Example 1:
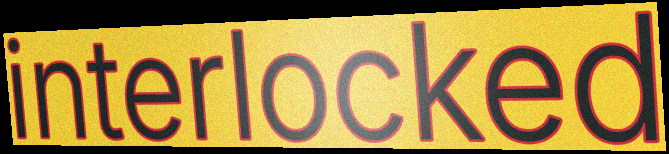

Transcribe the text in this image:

interlocked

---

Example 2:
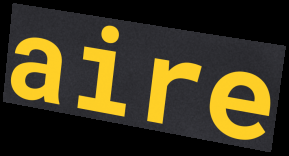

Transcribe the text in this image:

aire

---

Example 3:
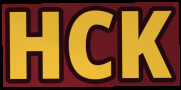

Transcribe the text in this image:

HCK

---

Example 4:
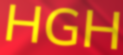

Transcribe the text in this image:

HGH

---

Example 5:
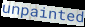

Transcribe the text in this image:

unpainted